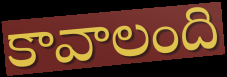
కావాలంది